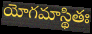
యోగమాస్థితః